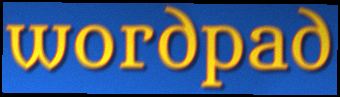
wordpad